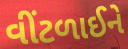
વીંટળાઈને